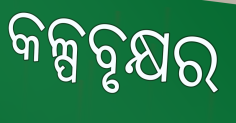
କଳ୍ପବୃକ୍ଷର